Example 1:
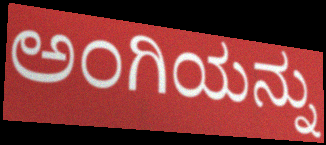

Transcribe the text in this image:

ಅಂಗಿಯನ್ನು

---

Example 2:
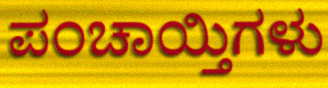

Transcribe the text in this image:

ಪಂಚಾಯ್ತಿಗಳು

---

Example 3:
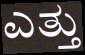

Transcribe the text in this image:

ಎತ್ತು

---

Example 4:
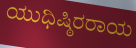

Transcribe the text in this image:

ಯುಧಿಷ್ಠಿರರಾಯ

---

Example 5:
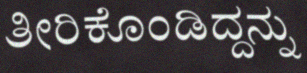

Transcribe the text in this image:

ತೀರಿಕೊಂಡಿದ್ದನ್ನು